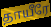
தாயீரே